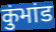
कुंभांड